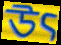
উৎ